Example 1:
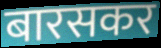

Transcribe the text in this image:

बारसकर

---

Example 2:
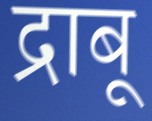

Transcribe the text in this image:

द्राबू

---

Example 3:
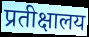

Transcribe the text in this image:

प्रतीक्षालय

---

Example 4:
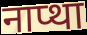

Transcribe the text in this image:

नाप्था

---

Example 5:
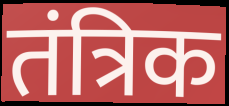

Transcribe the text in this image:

तंत्रिक